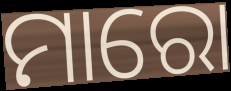
ମାରୋ